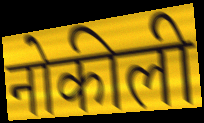
नोकीली